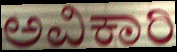
ಅವಿಕಾರಿ